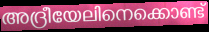
അദ്രീയേലിനെക്കൊണ്ട്